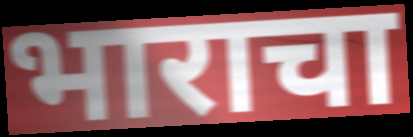
भाराचा